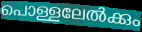
പൊള്ളലേൽക്കും